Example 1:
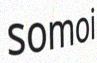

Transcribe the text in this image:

somoi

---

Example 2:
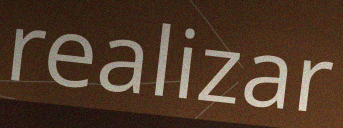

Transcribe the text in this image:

realizar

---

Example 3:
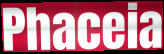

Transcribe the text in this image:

Phaceia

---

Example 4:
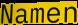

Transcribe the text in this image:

Namen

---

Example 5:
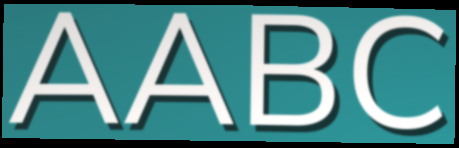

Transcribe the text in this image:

AABC